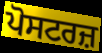
ਪੋਸਟਰਜ਼